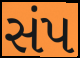
સંપ